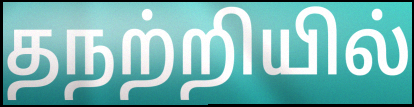
தநற்றியில்